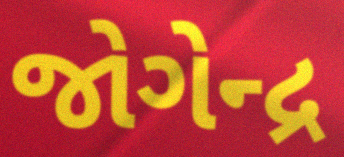
જોગેન્દ્ર